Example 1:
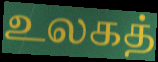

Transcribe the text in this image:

உலகத்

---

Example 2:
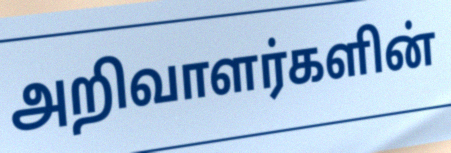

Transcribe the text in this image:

அறிவாளர்களின்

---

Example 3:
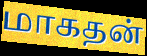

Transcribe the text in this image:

மாகதன்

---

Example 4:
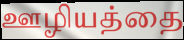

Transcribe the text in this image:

ஊழியத்தை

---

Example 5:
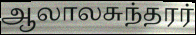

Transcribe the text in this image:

ஆலாலசுந்தரர்